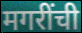
मगरींची